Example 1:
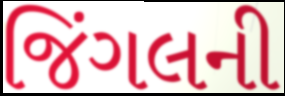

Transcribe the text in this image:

જિંગલની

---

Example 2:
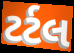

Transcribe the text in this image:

ટર્ટલ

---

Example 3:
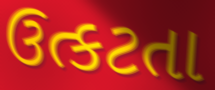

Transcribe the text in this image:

ઉત્કટતા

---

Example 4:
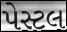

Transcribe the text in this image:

પેસ્ટલ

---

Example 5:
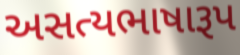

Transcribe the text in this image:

અસત્યભાષારૂપ